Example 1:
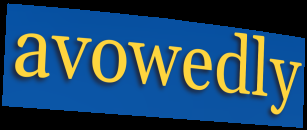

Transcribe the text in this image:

avowedly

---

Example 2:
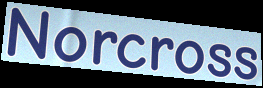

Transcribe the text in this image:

Norcross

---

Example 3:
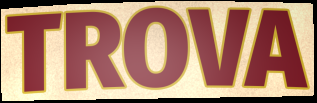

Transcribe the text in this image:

TROVA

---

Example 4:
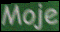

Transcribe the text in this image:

Moje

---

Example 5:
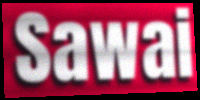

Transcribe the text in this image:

Sawai